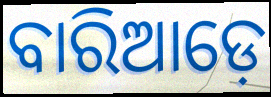
ବାରିଆଡ଼େ